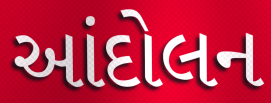
આંદોલન